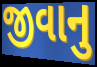
જીવાનુ